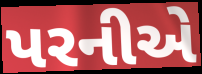
પરનીએ